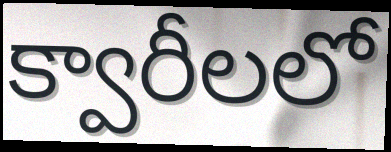
క్వారీలలో